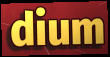
dium